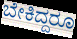
ಬೇಕಿದ್ದರೂ